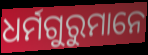
ଧର୍ମଗୁରୁମାନେ